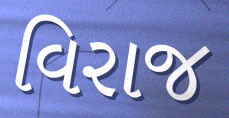
વિરાજ